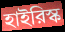
হাইরিস্ক